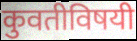
कुवतीविषयी